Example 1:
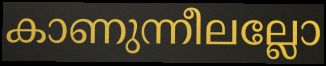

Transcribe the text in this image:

കാണുന്നീലല്ലോ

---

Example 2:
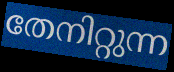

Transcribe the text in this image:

തേനിറ്റുന്ന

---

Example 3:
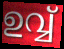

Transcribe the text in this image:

ഉവ്വ്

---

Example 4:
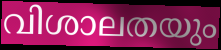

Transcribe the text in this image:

വിശാലതയും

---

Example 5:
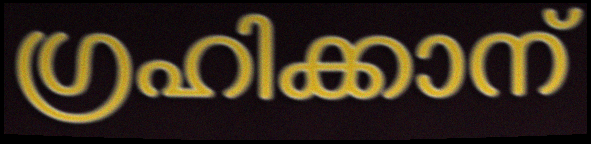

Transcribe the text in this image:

ഗ്രഹിക്കാന്